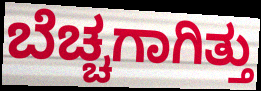
ಬೆಚ್ಚಗಾಗಿತ್ತು